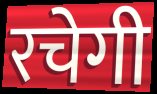
रचेगी